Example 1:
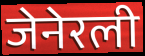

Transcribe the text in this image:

जेनेरली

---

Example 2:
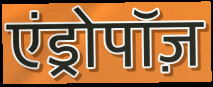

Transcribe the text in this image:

एंड्रोपॉज़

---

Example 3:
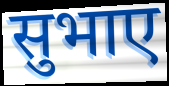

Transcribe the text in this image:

सुभाए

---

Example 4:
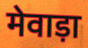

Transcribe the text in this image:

मेवाड़ा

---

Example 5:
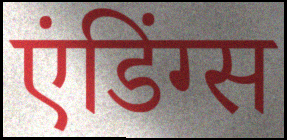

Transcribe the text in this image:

एंडिंग्स